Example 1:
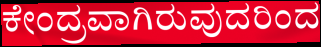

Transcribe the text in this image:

ಕೇಂದ್ರವಾಗಿರುವುದರಿಂದ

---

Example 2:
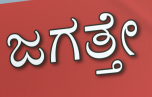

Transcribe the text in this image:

ಜಗತ್ತೇ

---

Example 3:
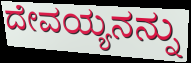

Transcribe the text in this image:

ದೇವಯ್ಯನನ್ನು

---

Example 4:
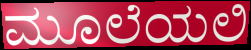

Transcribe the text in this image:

ಮೂಲೆಯಲಿ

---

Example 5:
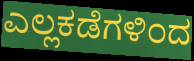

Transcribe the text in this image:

ಎಲ್ಲಕಡೆಗಳಿಂದ